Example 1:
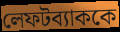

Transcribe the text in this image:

লেফটব্যাককে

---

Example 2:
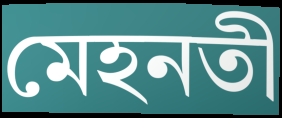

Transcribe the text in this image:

মেহনতী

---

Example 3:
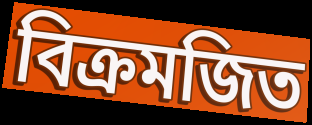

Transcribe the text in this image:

বিক্রমজিত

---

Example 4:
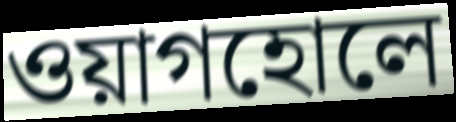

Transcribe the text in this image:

ওয়াগহোলে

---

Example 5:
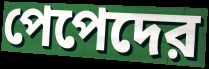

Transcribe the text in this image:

পেপেদের